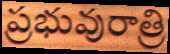
ప్రభువురాత్రి